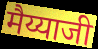
मैय्याजी